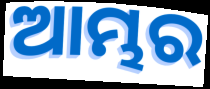
ଆମ୍ଭର